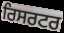
ਰਿਸਰਟਰ